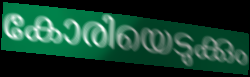
കോരിയെടുക്കും